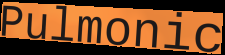
Pulmonic